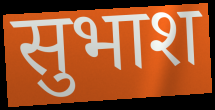
सुभाश